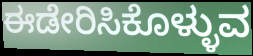
ಈಡೇರಿಸಿಕೊಳ್ಳುವ